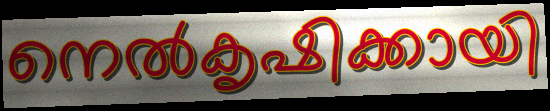
നെൽകൃഷിക്കായി